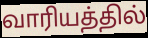
வாரியத்தில்